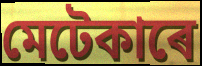
মেটেকাৰে